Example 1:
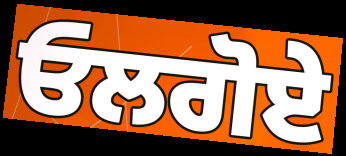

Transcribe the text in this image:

ਓਲਗੋਏ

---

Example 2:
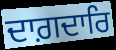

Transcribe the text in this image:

ਦਾਗ਼ਦਾਰਿ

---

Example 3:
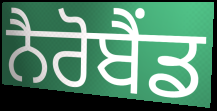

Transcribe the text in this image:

ਨੈਰੋਬੈਂਡ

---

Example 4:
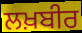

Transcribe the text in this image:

ਲਖ਼ਬੀਰ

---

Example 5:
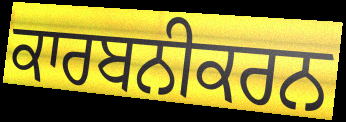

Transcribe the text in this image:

ਕਾਰਬਨੀਕਰਨ